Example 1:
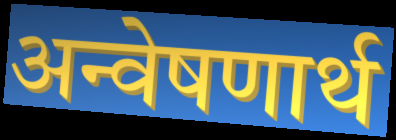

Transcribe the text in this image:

अन्वेषणार्थ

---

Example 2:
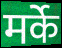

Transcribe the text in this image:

मर्के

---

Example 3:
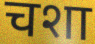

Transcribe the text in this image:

चशा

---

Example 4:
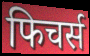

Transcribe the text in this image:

फिचर्स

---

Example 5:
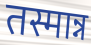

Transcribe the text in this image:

तस्मान्न